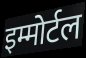
इम्मोर्टल